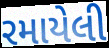
રમાયેલી